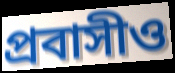
প্রবাসীও